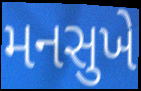
મનસુખે